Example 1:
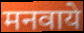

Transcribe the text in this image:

मनवाये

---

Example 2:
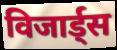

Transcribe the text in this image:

विजार्ड्स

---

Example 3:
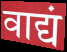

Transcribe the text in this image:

वाद्यं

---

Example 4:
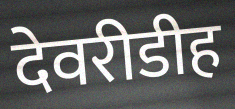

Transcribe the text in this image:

देवरीडीह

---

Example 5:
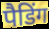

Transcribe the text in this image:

पैडिंग